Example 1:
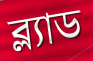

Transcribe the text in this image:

ব্ল্যাড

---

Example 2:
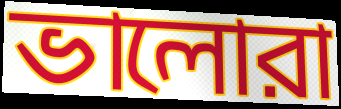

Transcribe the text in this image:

ভালোরা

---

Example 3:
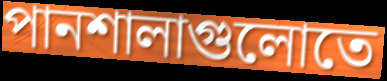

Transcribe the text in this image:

পানশালাগুলোতে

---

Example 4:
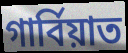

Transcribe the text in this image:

গার্বিয়াত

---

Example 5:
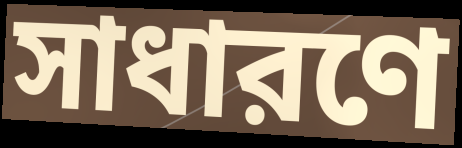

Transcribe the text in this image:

সাধারণে